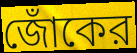
জোঁকের